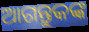
ଆଗନ୍ତୁକଙ୍କ